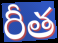
రీత